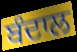
ਬੰਦਾਲ